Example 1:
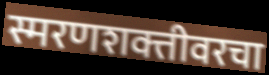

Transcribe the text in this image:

स्मरणशक्तीवरचा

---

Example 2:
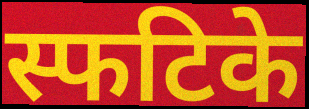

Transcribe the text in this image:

स्फटिके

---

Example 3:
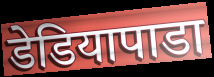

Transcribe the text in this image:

डेडियापाडा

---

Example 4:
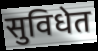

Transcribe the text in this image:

सुविधेत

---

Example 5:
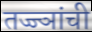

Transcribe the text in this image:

तज्ज्ञांची